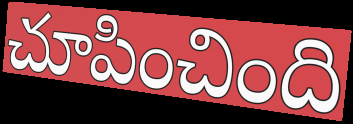
చూపించింది